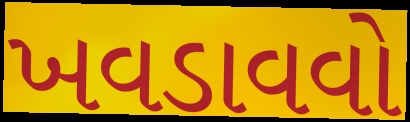
ખવડાવવો